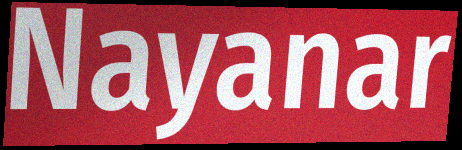
Nayanar